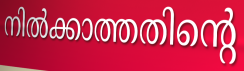
നിൽക്കാത്തതിന്റെ